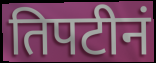
तिपटीनं